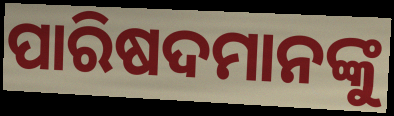
ପାରିଷଦମାନଙ୍କୁ